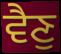
ਵੈਣੁ